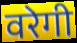
वरेगी